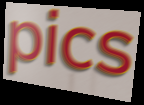
pics